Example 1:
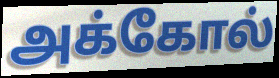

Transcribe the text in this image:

அக்கோல்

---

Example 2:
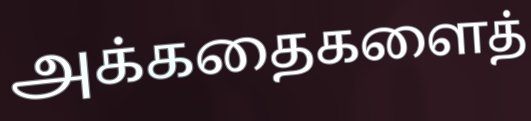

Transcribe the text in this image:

அக்கதைகளைத்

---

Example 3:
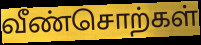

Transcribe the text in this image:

வீண்சொற்கள்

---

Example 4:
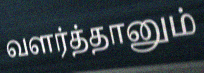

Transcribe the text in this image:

வளர்த்தானும்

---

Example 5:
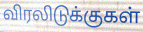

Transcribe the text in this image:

விரலிடுக்குகள்